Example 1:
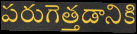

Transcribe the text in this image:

పరుగెత్తడానికి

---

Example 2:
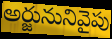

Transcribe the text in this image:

అర్జునునివైపు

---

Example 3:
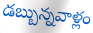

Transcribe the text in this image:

డబ్బున్నవాళ్లం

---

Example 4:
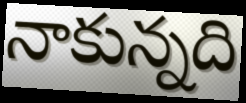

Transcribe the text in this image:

నాకున్నది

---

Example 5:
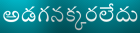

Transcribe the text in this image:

అడగనక్కరలేదు